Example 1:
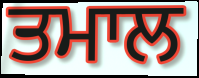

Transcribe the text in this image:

ਤਮਾਲ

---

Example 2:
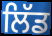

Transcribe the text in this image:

ਲਿੱਡ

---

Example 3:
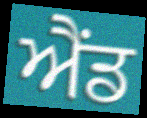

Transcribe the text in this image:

ਐੰਡ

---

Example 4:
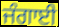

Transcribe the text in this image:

ਜੰਗਾਈ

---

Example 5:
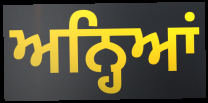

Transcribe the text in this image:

ਅਨ੍ਹਿਆਂ